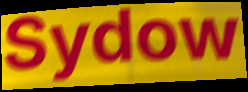
Sydow